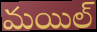
మయిల్